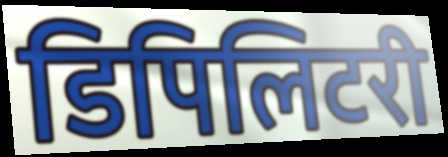
डिपिलिटरी